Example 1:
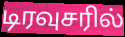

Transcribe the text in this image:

டிரவுசரில்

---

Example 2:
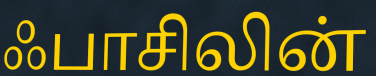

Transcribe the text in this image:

ஃபாசிலின்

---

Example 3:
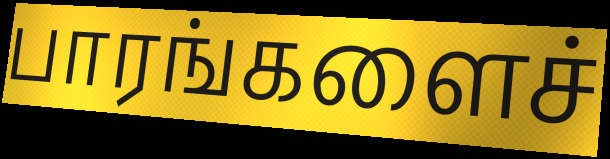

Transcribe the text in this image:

பாரங்களைச்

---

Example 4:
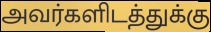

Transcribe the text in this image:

அவர்களிடத்துக்கு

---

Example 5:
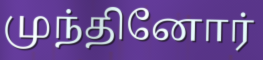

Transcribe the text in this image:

முந்தினோர்